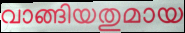
വാങ്ങിയതുമായ